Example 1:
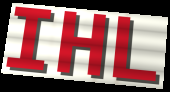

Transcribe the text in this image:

IHL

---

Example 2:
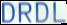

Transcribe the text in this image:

DRDL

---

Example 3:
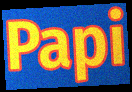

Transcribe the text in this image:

Papi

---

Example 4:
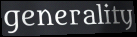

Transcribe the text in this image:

generality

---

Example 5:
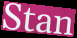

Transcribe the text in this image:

Stan